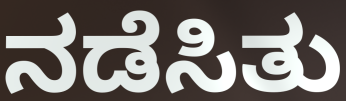
ನಡೆಸಿತು